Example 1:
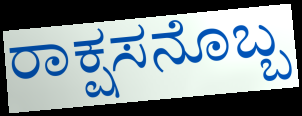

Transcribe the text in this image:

ರಾಕ್ಷಸನೊಬ್ಬ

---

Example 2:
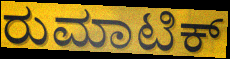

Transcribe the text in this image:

ರುಮಾಟಿಕ್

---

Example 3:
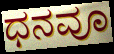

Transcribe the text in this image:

ಧನವೂ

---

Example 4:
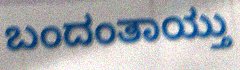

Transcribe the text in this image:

ಬಂದಂತಾಯ್ತು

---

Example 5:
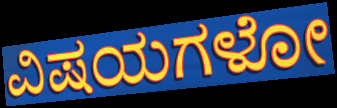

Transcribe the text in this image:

ವಿಷಯಗಳೋ